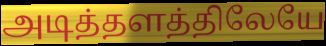
அடித்தளத்திலேயே